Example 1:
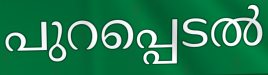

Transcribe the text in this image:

പുറപ്പെടൽ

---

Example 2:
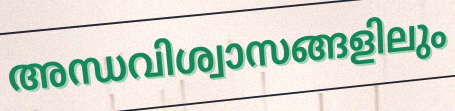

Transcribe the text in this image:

അന്ധവിശ്വാസങ്ങളിലും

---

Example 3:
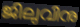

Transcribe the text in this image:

ജിലുവിനു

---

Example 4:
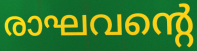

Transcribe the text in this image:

രാഘവന്റെ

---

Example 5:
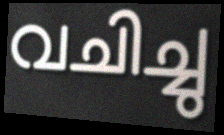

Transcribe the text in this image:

വചിച്ചു